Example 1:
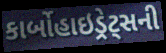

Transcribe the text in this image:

કાર્બોહાઇડ્રેટ્સની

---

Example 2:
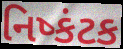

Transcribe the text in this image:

નિષ્કંટક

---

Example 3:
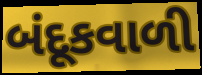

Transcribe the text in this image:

બંદૂકવાળી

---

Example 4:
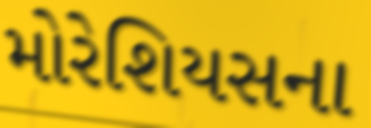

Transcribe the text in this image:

મોરેશિયસના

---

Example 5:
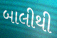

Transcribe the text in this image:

બાલીથી